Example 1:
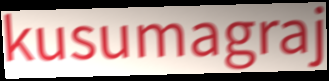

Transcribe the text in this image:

kusumagraj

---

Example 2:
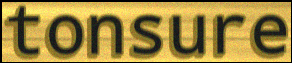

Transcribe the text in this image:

tonsure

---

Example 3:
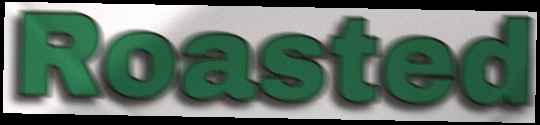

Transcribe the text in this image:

Roasted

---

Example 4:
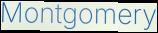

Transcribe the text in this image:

Montgomery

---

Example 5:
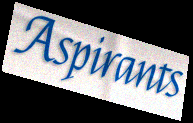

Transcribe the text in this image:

Aspirants